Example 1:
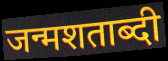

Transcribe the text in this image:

जन्मशताब्दी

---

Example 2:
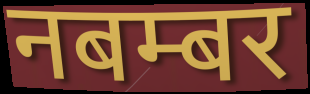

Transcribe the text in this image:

नबम्बर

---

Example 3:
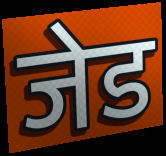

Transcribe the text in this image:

जेड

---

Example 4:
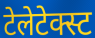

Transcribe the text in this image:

टेलेटेक्स्ट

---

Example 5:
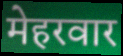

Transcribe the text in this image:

मेहरवार